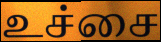
உச்சை